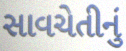
સાવચેતીનું